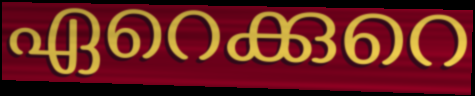
ഏറെക്കുറെ